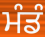
ਮੰਡੰ